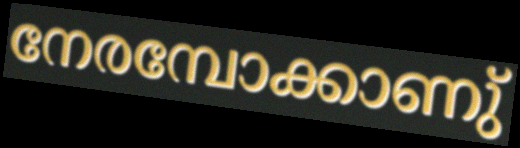
നേരമ്പോക്കാണു്